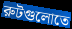
রুটগুলোতে